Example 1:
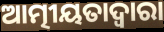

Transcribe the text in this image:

ଆତ୍ମୀୟତାଦ୍ଵାରା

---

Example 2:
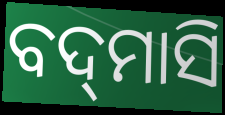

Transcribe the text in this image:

ବଦ୍‌ମାସି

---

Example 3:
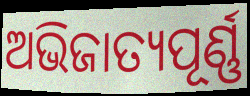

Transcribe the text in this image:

ଅଭିଜାତ୍ୟପୂର୍ଣ୍ଣ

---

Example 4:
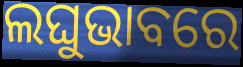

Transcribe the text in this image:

ଲଘୁଭାବରେ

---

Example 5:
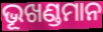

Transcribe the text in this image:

ଭୂଖଣ୍ଡମାନ